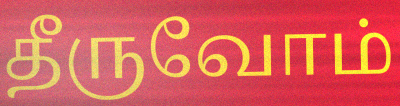
தீருவோம்